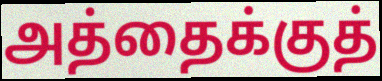
அத்தைக்குத்